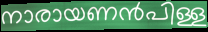
നാരായണൻപിള്ള